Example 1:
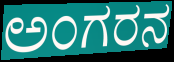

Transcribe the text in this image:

ಅಂಗರನ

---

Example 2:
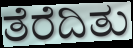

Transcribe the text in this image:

ತೆರೆದಿತು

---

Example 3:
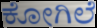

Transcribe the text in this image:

ಕೋಗಿಲೆ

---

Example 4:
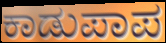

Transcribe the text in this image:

ಕಾಡುಪಾಪ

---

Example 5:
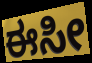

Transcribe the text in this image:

ಈಸೀ